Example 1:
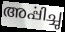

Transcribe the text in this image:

അൎപ്പിച്ചു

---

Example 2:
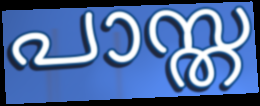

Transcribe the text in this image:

പാസ്ത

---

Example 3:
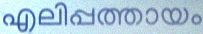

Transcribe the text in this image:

എലിപ്പത്തായം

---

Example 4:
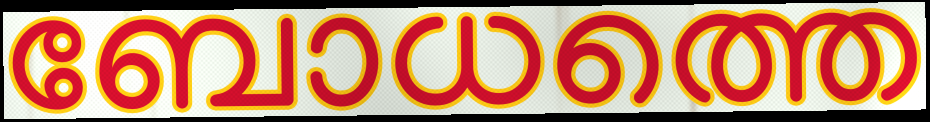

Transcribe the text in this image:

ബോധത്തെ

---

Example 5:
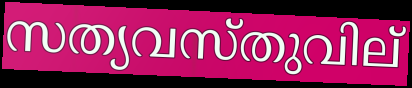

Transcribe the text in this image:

സത്യവസ്തുവില്